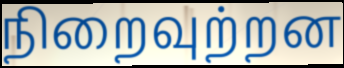
நிறைவுற்றன